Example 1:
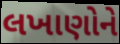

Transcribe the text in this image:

લખાણોને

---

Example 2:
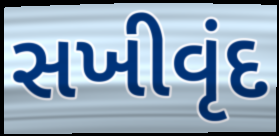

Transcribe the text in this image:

સખીવૃંદ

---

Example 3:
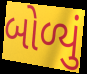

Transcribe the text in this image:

બોળ્યું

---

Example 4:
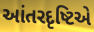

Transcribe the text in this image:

આંતરદૃષ્ટિએ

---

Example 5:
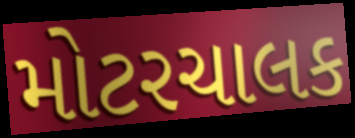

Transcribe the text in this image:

મોટરચાલક